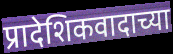
प्रादेशिकवादाच्या